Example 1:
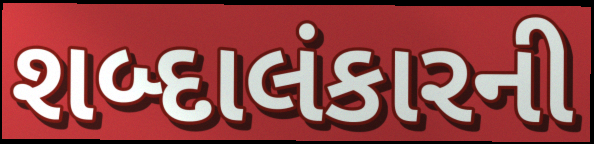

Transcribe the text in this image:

શબ્દાલંકારની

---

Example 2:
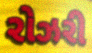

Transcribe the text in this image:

રોઝરી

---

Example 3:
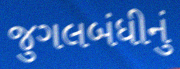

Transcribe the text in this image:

જુગલબંધીનું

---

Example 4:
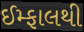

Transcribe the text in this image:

ઈમ્ફાલથી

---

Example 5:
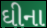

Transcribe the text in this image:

ઘીના